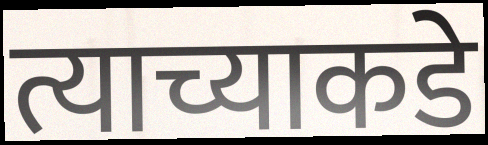
त्याच्याकडे